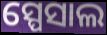
ସ୍ପେସାଲ